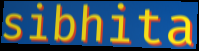
sibhita